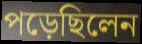
পড়েছিলেন